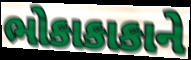
ભોકાકાકાને